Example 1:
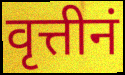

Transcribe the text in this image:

वृत्तीनं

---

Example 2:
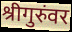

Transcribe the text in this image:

श्रीगुरुंवर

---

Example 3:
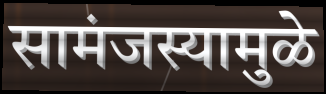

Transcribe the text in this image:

सामंजस्यामुळे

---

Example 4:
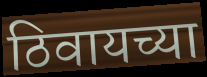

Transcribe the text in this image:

ठिवायच्या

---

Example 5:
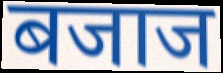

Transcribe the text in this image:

बजाज